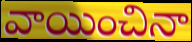
వాయించినా